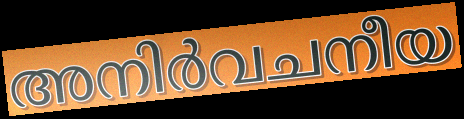
അനിർവചനീയ